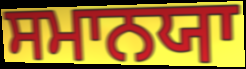
ਸਮਾਨਯਾ